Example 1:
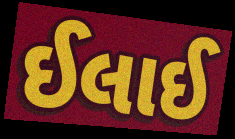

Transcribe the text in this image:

ઈલાઈ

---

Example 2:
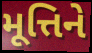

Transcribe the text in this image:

મૂત્તિને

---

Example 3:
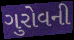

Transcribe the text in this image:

ગુરોવની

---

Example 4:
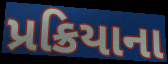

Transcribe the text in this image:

પ્રક્રિયાના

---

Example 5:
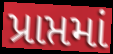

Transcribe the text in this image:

પ્રાપ્તમાં